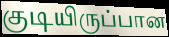
குடியிருப்பான